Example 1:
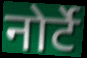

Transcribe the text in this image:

नोर्टे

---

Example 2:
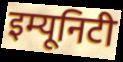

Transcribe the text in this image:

इम्यूनिटी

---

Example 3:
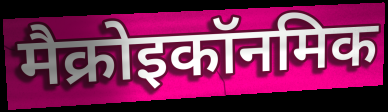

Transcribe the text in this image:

मैक्रोइकॉनमिक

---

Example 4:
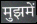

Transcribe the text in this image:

मुझमें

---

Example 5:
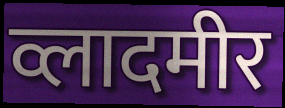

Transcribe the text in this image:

व्लादमीर